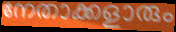
നേതാക്കളാരും